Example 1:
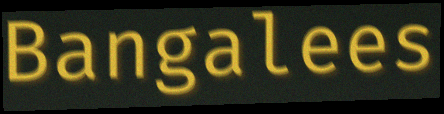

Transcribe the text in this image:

Bangalees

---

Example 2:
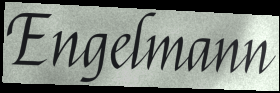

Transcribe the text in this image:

Engelmann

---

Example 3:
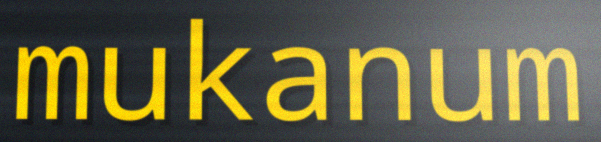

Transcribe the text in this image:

mukanum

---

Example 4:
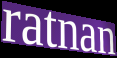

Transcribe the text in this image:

ratnan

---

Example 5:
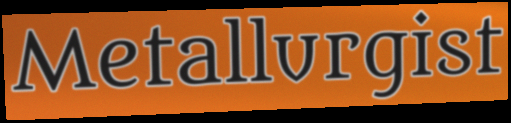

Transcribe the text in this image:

Metallurgist